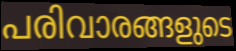
പരിവാരങ്ങളുടെ